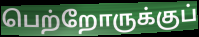
பெற்றோருக்குப்